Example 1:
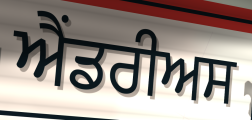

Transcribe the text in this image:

ਐਂਡਰੀਅਸ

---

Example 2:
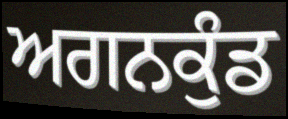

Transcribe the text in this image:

ਅਗਨਕੁੰਡ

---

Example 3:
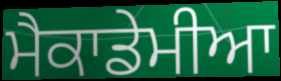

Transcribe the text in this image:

ਮੈਕਾਡੇਮੀਆ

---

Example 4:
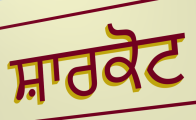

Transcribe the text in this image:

ਸ਼ਾਰਕੋਟ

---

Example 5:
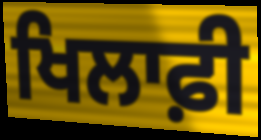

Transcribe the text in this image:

ਖਿਲਾਫ਼ੀ